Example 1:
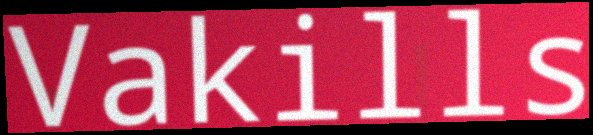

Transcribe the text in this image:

Vakills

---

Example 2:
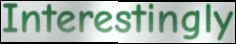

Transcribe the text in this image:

Interestingly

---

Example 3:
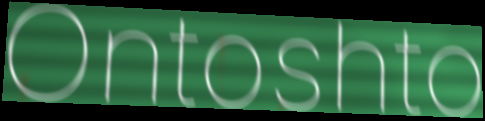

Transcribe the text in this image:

Ontoshto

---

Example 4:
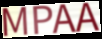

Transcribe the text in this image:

MPAA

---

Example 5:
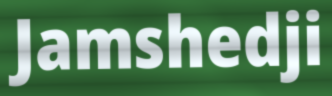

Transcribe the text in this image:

Jamshedji